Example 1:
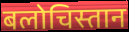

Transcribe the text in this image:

बलोचिस्तान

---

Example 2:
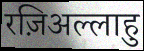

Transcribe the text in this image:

रज़िअल्लाहु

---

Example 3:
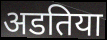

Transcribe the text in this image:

अडतिया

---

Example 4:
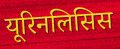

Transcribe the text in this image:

यूरिनलिसिस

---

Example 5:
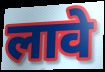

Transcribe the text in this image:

लावे